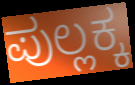
ಪುಲ್ಲಕ್ಕ